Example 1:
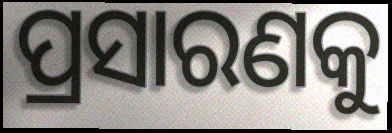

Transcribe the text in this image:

ପ୍ରସାରଣକୁ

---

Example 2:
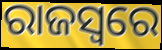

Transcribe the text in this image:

ରାଜସ୍ବରେ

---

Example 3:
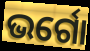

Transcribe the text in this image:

ଭର୍ଗୋ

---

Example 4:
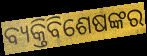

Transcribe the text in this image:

ବ୍ୟକ୍ତିବିଶେଷଙ୍କର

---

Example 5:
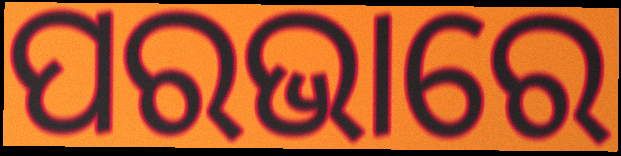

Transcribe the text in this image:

ପରଭାରେ